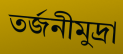
তর্জনীমুদ্রা